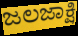
ಜಲಜಾಕ್ಷಿ